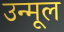
उन्मूल